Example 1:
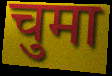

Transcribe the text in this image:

चुमा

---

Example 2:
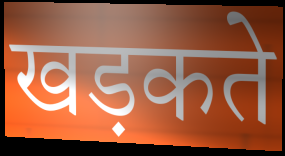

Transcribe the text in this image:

खड़कते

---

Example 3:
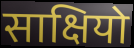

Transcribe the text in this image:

साक्षियो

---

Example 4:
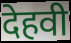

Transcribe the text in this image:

देहवी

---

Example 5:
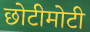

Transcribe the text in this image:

छोटीमोटी